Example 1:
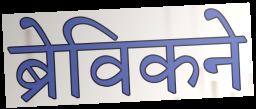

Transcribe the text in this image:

ब्रेविकने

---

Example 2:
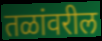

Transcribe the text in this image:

तळांवरील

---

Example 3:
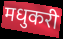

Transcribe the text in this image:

मधुकरी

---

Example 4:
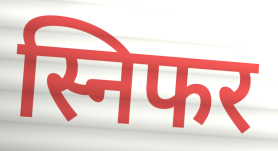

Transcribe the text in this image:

स्निफर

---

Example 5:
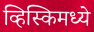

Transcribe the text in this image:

व्हिस्किमध्ये